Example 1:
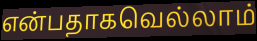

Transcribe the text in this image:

என்பதாகவெல்லாம்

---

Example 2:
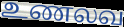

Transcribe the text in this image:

உணலவ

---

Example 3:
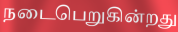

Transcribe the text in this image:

நடைபெறுகின்றது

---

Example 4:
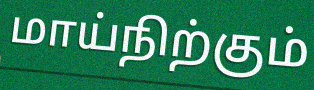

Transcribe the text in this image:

மாய்நிற்கும்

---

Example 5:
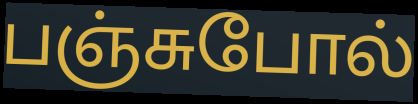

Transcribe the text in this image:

பஞ்சுபோல்